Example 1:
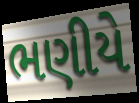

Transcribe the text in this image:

ભણીયે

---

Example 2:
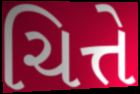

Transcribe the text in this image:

ચિત્તે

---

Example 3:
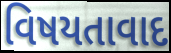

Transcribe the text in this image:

વિષયતાવાદ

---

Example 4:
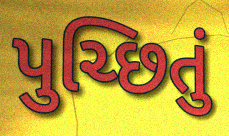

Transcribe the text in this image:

પુચ્છિતું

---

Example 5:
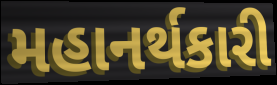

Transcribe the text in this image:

મહાનર્થકારી